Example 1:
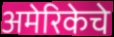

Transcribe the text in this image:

अमेरिकेचे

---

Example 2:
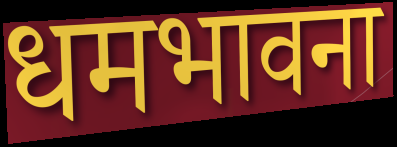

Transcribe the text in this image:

धमभावना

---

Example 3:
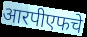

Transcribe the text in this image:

आरपीएफचे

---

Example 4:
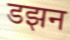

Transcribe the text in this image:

डझन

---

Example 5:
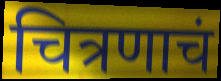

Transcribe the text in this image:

चित्रणाचं